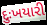
દુઃખયારી